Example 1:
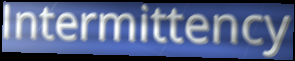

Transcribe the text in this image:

Intermittency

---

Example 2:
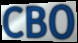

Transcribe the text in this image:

CBO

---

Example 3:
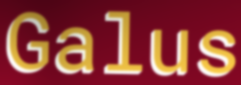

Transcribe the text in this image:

Galus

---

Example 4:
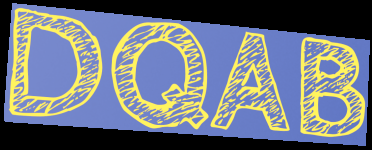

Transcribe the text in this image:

DQAB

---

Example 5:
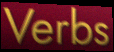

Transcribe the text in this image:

Verbs